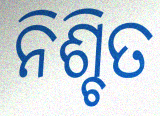
ନିଶ୍ଚିତ